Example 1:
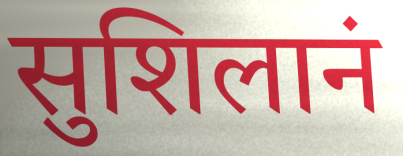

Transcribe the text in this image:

सुशिलानं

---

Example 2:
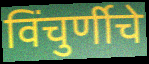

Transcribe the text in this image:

विंचुर्णीचे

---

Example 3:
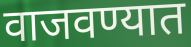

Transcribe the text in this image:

वाजवण्यात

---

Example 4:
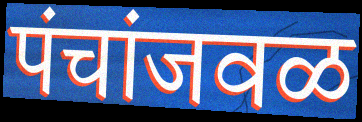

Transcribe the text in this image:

पंचांजवळ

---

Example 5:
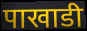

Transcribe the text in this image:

पाखाडी